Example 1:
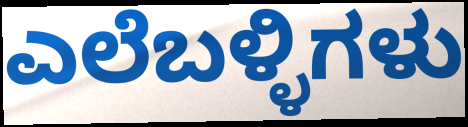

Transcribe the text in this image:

ಎಲೆಬಳ್ಳಿಗಳು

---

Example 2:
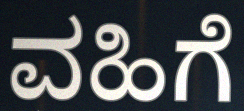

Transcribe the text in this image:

ವಹಿಗೆ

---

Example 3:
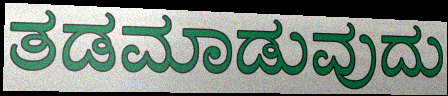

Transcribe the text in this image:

ತಡಮಾಡುವುದು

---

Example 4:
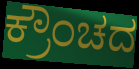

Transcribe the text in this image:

ಕ್ರೌಂಚದ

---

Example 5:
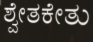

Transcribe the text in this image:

ಶ್ವೇತಕೇತು